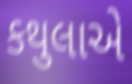
કથુલાએ